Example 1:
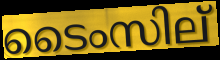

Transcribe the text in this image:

ടൈംസില്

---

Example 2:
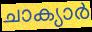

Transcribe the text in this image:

ചാക്യാർ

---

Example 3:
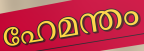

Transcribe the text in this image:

ഹേമന്തം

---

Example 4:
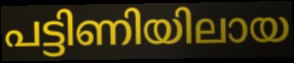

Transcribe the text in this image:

പട്ടിണിയിലായ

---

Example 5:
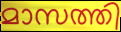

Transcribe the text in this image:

മാസത്തി